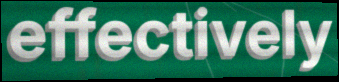
effectively